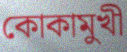
কোকামুখী